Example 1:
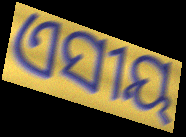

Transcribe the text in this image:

ଏସୀୟ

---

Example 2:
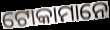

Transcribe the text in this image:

ଟୋକାମାନେ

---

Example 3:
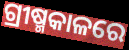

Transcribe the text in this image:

ଗ୍ରୀଷ୍ମକାଳରେ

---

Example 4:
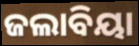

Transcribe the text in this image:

ଜଲାବିୟା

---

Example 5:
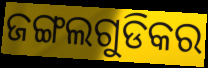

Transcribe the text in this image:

ଜଙ୍ଗଲଗୁଡିକର